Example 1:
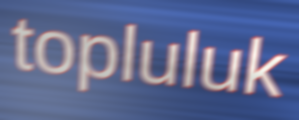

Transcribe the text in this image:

topluluk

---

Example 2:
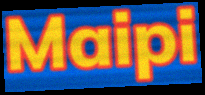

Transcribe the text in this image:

Maipi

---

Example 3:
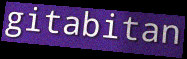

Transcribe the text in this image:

gitabitan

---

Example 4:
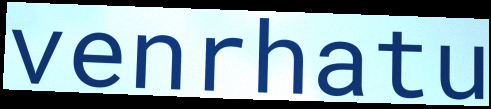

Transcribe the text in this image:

venrhatu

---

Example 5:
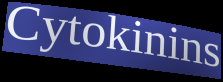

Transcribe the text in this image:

Cytokinins